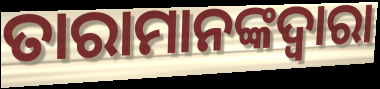
ତାରାମାନଙ୍କଦ୍ୱାରା